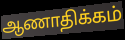
ஆணாதிக்கம்